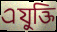
এযুক্তি